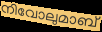
നിവോലുമാബ്